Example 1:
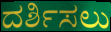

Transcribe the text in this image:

ದರ್ಶಿಸಲು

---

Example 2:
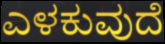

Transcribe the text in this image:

ಎಳಕುವುದೆ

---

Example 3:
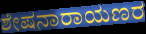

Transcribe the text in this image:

ಶೇಷನಾರಾಯಣರ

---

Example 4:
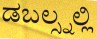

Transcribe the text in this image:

ಡಬಲ್ಸ್ನಲ್ಲಿ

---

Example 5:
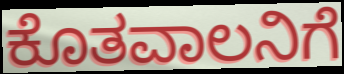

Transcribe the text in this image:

ಕೊತವಾಲನಿಗೆ